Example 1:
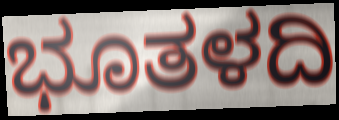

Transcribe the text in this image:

ಭೂತಳದಿ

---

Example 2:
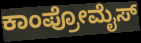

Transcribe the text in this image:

ಕಾಂಪ್ರೋಮೈಸ್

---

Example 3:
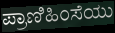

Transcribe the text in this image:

ಪ್ರಾಣಿಹಿಂಸೆಯು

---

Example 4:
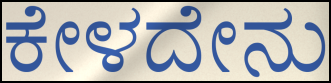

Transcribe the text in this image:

ಕೇಳದೇನು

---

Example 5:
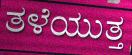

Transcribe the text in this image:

ತಳೆಯುತ್ತ